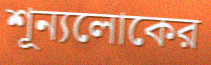
শূন্যলোকের